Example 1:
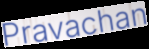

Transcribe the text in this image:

Pravachan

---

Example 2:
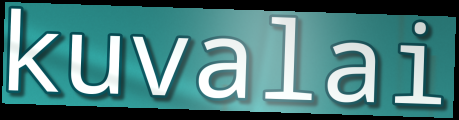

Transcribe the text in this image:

kuvalai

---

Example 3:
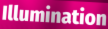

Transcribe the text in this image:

Illumination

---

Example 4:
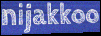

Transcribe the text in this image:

nijakkoo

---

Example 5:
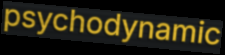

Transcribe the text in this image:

psychodynamic